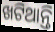
ଖଟିଥାନ୍ତି